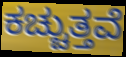
ಕಚ್ಚುತ್ತವೆ